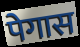
पेगास